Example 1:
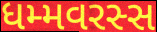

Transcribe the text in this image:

ધમ્મવરસ્સ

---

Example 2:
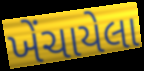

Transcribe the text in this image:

ખેંચાયેલા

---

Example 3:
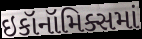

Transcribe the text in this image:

ઇકૉનૉમિક્સમાં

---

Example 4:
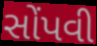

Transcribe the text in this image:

સોંપવી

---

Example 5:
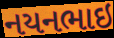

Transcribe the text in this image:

નયનભાઇ